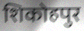
शिकोहपुर